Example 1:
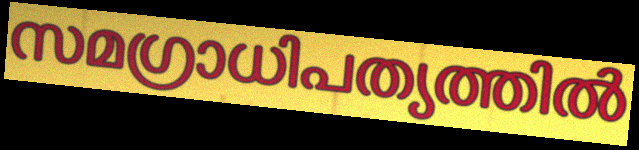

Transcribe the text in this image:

സമഗ്രാധിപത്യത്തിൽ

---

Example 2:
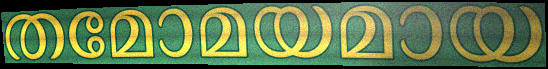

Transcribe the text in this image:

തമോമയമായ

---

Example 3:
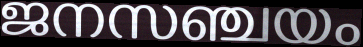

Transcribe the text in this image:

ജനസഞ്ചയം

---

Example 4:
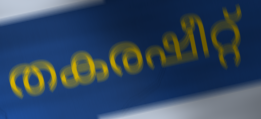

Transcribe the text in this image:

തകരഷീറ്റ്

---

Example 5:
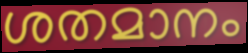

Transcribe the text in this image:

ശതമാനം